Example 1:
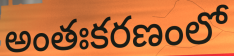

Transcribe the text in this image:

అంతఃకరణంలో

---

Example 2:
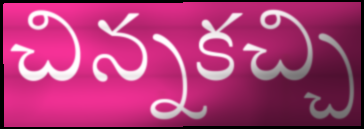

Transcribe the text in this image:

చిన్నకచ్చి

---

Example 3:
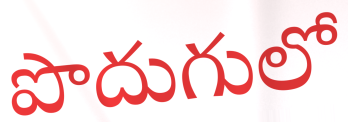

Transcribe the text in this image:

పొదుగులో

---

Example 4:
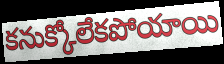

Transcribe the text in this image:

కనుక్కోలేకపోయాయి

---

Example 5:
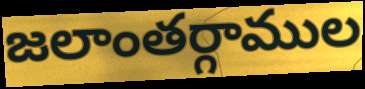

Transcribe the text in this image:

జలాంతర్గాముల